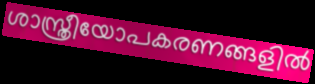
ശാസ്ത്രീയോപകരണങ്ങളിൽ